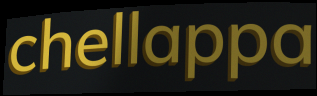
chellappa